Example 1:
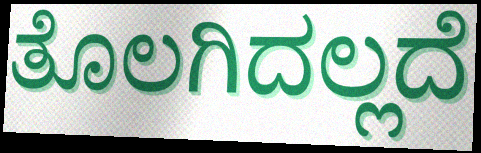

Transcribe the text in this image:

ತೊಲಗಿದಲ್ಲದೆ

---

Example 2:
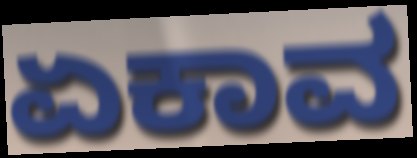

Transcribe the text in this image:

ಏಕಾವ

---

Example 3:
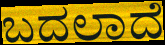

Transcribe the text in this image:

ಬದಲಾದೆ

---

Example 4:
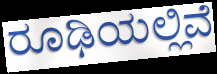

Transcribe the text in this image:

ರೂಢಿಯಲ್ಲಿವೆ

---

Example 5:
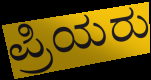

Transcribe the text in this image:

ಪ್ರಿಯರು